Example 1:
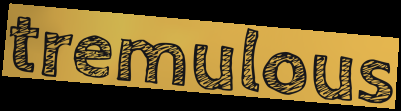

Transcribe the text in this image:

tremulous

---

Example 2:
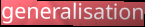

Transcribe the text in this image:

generalisation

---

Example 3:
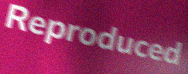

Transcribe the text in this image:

Reproduced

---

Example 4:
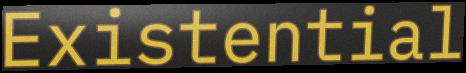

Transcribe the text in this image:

Existential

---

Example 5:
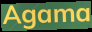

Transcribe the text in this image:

Agama